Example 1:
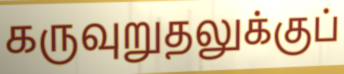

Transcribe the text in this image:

கருவுறுதலுக்குப்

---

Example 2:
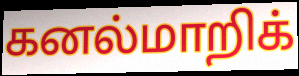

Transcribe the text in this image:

கனல்மாறிக்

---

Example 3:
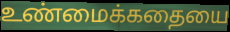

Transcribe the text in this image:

உண்மைக்கதையை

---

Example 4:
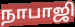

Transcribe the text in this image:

நாபாஜி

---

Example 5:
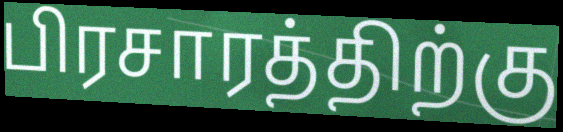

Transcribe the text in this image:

பிரசாரத்திற்கு